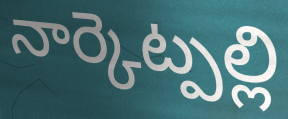
నార్కెట్పల్లి